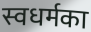
स्वधर्मका